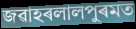
জৱাহৰলালপুৰমত